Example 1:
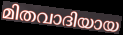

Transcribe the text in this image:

മിതവാദിയായ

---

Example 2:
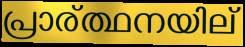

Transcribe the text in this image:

പ്രാര്ത്ഥനയില്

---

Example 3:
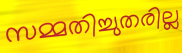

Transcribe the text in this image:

സമ്മതിച്ചുതരില്ല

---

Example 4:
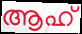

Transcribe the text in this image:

ആഹ്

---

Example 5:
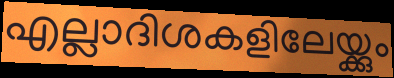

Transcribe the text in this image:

എല്ലാദിശകളിലേയ്ക്കും